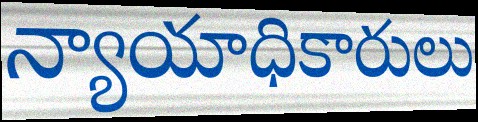
న్యాయాధికారులు